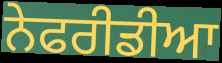
ਨੇਫਰੀਡੀਆ